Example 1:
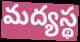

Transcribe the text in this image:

మద్యస్థ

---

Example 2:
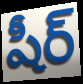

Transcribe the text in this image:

షీర్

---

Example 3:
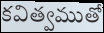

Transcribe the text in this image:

కవిత్వముతో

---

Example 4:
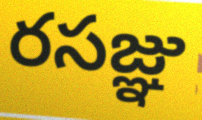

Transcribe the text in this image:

రసజ్ఞు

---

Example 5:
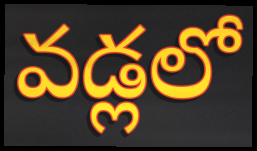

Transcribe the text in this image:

వడ్లలో